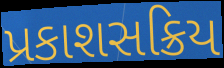
પ્રકાશસક્રિય